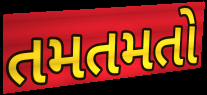
તમતમતો